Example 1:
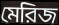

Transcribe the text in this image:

মেরিজ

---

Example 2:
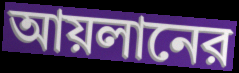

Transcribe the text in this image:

আয়লানের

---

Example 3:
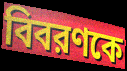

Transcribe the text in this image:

বিবরণকে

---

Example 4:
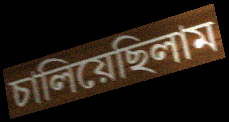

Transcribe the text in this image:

চালিয়েছিলাম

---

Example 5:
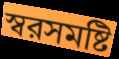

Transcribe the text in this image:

স্বরসমষ্টি